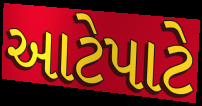
આટેપાટે